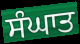
ਸੰਘਾਤ